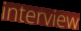
interview